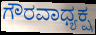
ಗೌರವಾಧ್ಯಕ್ಷ